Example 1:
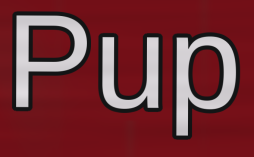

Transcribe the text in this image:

Pup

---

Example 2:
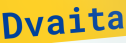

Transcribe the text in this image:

Dvaita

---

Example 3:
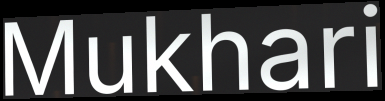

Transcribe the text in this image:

Mukhari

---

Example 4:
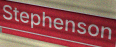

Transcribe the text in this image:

Stephenson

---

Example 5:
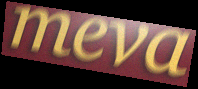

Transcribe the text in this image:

meva